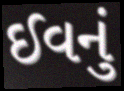
ઈવનું